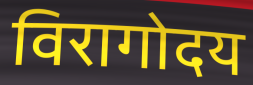
विरागोदय